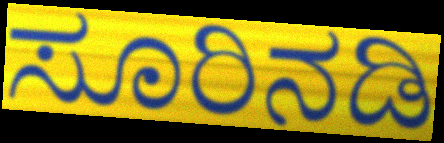
ಸೂರಿನಡಿ